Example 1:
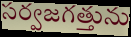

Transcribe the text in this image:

సర్వజగత్తును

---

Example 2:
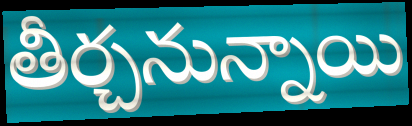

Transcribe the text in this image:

తీర్చనున్నాయి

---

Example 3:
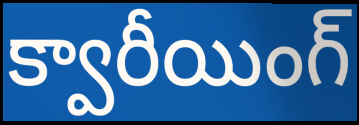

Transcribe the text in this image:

క్వారీయింగ్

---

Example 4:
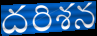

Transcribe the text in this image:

దరిశన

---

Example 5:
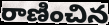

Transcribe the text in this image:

రాణించిన